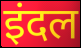
इंदल